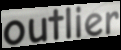
outlier